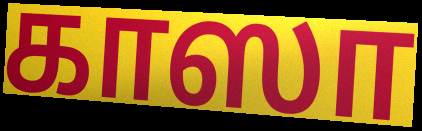
காஸா